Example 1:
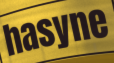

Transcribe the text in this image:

hasyne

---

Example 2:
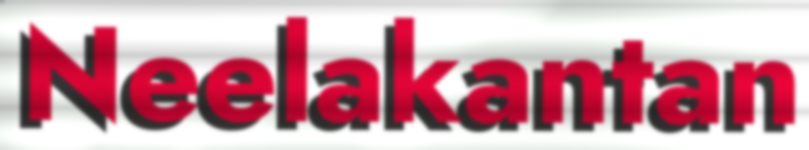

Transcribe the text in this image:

Neelakantan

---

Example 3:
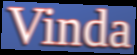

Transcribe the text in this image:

Vinda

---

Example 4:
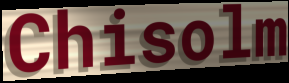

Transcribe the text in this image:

Chisolm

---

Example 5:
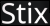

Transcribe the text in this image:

Stix